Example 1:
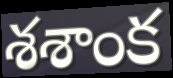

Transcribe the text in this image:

శశాంక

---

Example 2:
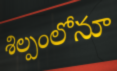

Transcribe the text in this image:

శిల్పంలోనూ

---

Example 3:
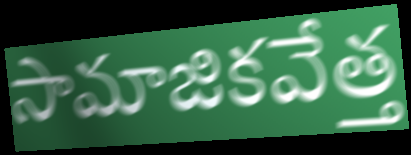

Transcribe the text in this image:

సామాజికవేత్త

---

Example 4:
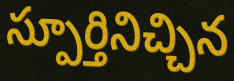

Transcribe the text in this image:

స్పూర్తినిచ్చిన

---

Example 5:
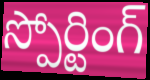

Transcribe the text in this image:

స్పోర్టింగ్